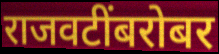
राजवटींबरोबर